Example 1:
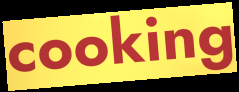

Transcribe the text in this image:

cooking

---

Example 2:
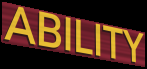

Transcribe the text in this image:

ABILITY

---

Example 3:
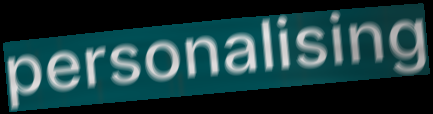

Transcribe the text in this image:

personalising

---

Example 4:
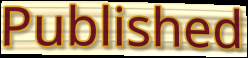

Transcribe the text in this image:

Published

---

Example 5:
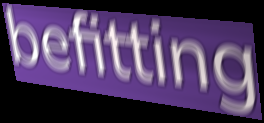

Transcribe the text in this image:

befitting